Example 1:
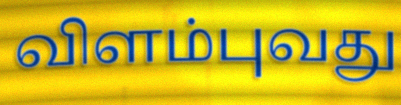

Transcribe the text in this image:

விளம்புவது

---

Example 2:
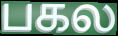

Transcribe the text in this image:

பகல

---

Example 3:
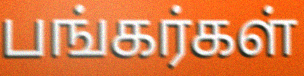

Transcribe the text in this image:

பங்கர்கள்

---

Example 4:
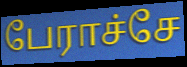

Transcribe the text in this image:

பேராச்சே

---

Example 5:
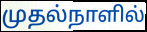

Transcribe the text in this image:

முதல்நாளில்